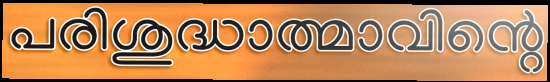
പരിശുദ്ധാത്മാവിന്റെ